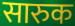
सारुक